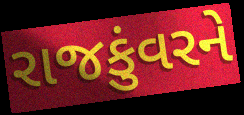
રાજકુંવરને